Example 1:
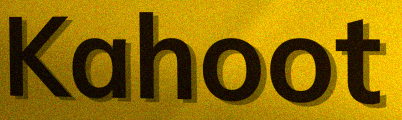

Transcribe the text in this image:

Kahoot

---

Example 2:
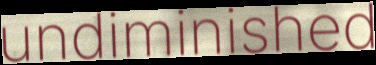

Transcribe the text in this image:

undiminished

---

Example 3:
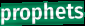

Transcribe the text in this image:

prophets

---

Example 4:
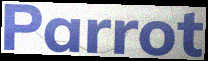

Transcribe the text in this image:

Parrot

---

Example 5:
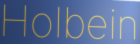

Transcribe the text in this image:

Holbein